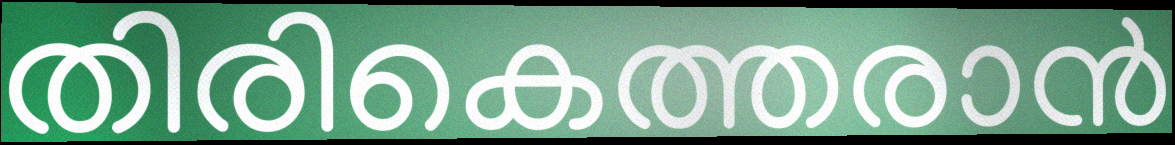
തിരികെത്തരാൻ